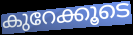
കുറേക്കൂടെ